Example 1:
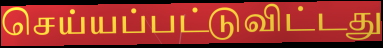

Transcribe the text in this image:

செய்யப்பட்டுவிட்டது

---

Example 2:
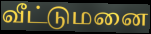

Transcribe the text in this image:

வீட்டுமனை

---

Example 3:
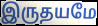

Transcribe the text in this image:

இருதயமே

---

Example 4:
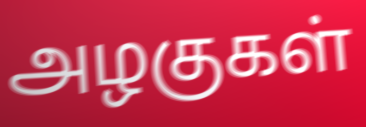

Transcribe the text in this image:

அழகுகள்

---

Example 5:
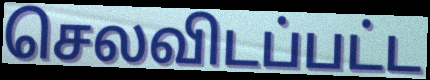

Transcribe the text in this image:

செலவிடப்பட்ட